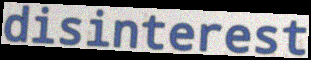
disinterest